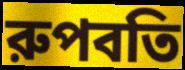
রুপবতি